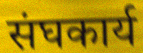
संघकार्य